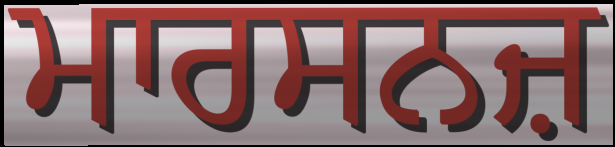
ਮਾਰਸਨਜ਼